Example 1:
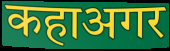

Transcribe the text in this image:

कहाअगर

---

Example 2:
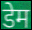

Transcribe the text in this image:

डेम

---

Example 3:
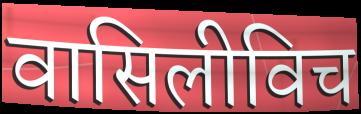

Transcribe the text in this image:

वासिलीविच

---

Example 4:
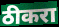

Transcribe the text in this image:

ठीकरा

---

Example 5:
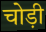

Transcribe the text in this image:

चोड़ी